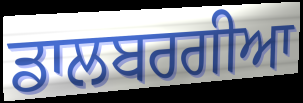
ਡਾਲਬਰਗੀਆ